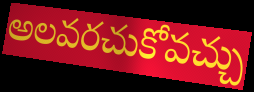
అలవరచుకోవచ్చు